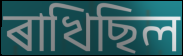
ৰাখিছিল